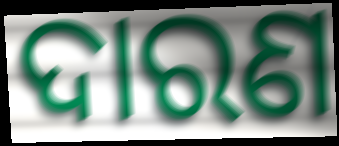
ଦାରଣ